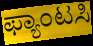
ಫ್ಯಾಂಟಸಿ